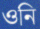
ওনি